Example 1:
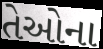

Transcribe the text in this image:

તેઓના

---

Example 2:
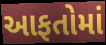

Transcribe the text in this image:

આફતોમાં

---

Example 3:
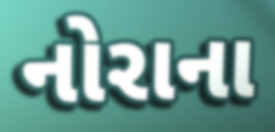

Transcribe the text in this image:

નોરાના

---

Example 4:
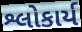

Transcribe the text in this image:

શ્લોકાર્ય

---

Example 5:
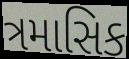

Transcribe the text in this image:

ત્રમાસિક